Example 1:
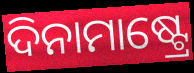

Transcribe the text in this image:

ଦିନାମାଷ୍ଟ୍ରେ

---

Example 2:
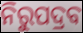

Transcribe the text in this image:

ନିରୁପଦ୍ରବ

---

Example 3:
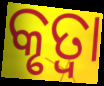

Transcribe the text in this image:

କୃତ୍ଵା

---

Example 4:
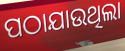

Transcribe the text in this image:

ପଠାଯାଉଥିଲା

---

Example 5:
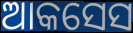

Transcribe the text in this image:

ଆକସେସ